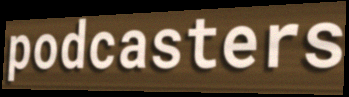
podcasters